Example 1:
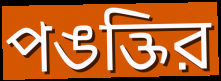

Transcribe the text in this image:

পঙক্তির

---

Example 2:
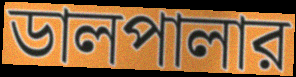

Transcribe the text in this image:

ডালপালার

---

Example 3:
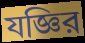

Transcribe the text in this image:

যজ্ঞির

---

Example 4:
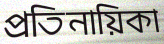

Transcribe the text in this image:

প্রতিনায়িকা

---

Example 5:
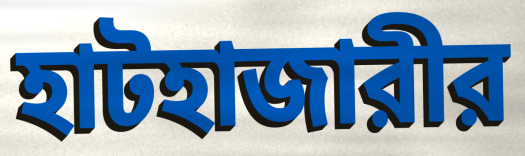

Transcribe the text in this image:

হাটহাজারীর